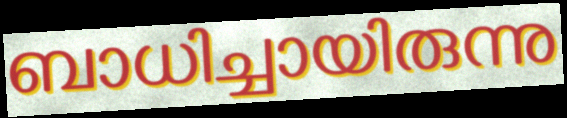
ബാധിച്ചായിരുന്നു